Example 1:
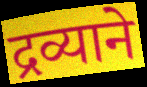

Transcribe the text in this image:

द्रव्याने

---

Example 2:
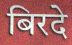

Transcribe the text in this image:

बिरदे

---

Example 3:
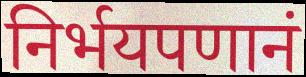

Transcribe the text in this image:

निर्भयपणानं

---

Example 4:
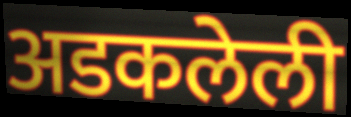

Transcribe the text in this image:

अडकलेली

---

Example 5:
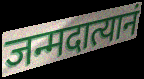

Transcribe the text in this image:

जन्मदात्यानं